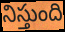
నిస్తుంది